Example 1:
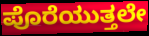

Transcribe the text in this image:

ಪೊರೆಯುತ್ತಲೇ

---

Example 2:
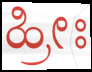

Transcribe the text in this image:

ಹ್ರೀಃ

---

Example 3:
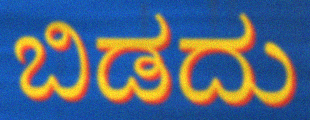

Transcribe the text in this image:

ಬಿಡದು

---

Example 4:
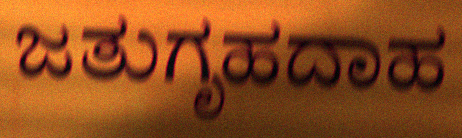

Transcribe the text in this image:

ಜತುಗೃಹದಾಹ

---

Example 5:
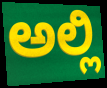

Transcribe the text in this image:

ಅಲ್ಲಿ